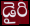
డైరి